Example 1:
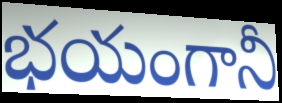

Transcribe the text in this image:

భయంగానీ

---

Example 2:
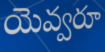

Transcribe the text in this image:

యెవ్వరూ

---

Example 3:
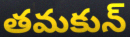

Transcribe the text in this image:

తమకున్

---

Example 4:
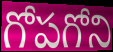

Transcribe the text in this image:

గోపగోని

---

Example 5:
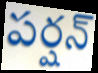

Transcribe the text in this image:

పర్షన్